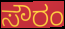
ಸೌರಂ